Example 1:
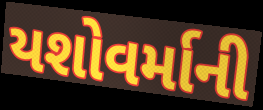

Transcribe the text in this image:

યશોવર્માની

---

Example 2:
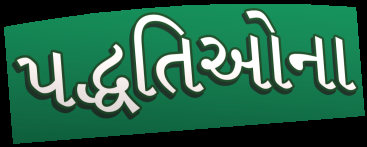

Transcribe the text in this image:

પદ્ધતિઓના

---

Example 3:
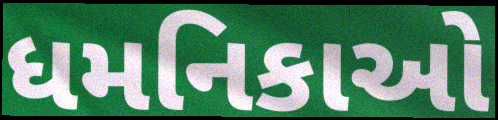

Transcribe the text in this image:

ધમનિકાઓ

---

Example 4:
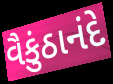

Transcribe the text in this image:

વૈકુંઠાનંદે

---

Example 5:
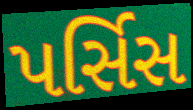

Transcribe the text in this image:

પર્સિસ